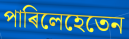
পাৰিলেহেতেন